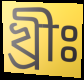
খ্রীঃ